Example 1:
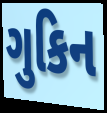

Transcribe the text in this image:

ગુકિન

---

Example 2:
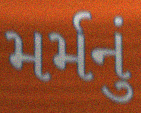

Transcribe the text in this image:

મર્મનું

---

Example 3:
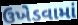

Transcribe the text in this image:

ઉખેડવામાં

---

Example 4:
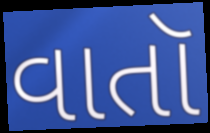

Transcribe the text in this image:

વાતૉ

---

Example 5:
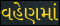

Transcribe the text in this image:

વહેણમાં